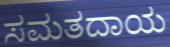
ಸಮತದಾಯ